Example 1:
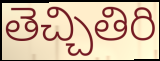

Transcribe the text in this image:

తెచ్చితిరి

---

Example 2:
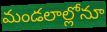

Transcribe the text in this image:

మండలాల్లోనూ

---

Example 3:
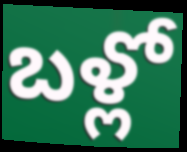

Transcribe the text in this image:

బళ్లో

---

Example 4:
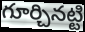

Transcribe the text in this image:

గూర్చినట్టి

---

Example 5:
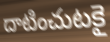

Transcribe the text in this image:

దాటించుటకై